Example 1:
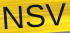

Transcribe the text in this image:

NSV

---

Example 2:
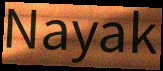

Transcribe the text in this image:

Nayak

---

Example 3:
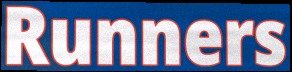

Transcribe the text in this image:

Runners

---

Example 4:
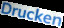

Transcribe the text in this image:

Drucken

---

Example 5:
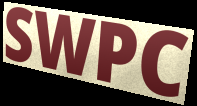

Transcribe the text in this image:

SWPC